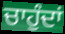
ਚਾਹੁੰਦਾਂ